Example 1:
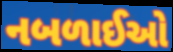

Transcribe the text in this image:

નબળાઈઓ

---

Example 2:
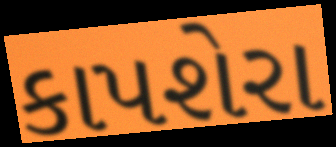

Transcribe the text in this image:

કાપશેરા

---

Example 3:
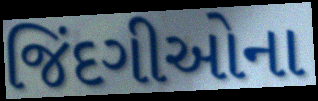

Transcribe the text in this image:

જિંદગીઓના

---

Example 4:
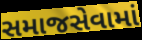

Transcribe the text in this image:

સમાજસેવામાં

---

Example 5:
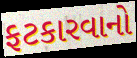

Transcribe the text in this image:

ફટકારવાનો